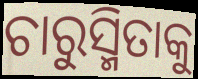
ଚାରୁସ୍ମିତାକୁ